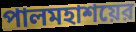
পালমহাশয়ের